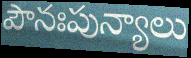
పౌనఃపున్యాలు